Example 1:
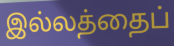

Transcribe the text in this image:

இல்லத்தைப்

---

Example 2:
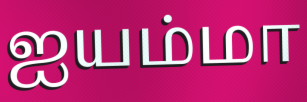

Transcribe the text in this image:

ஐயம்மா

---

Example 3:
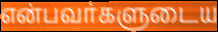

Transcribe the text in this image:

என்பவர்களுடைய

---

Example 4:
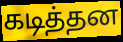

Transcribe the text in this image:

கடித்தன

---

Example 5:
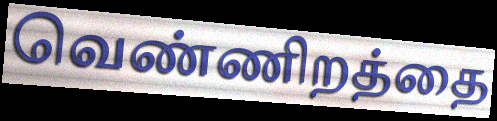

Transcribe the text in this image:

வெண்ணிறத்தை